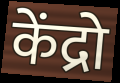
केंद्रो